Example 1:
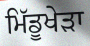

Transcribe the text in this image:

ਮਿੱਡੂਖੇੜਾ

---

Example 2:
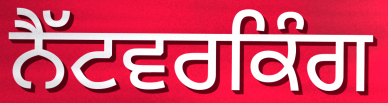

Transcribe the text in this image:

ਨੈੱਟਵਰਕਿੰਗ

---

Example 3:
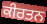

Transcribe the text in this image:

ਕੀਰਤਨ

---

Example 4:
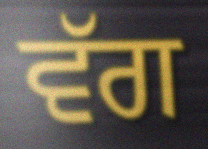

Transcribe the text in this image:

ਵੱਗ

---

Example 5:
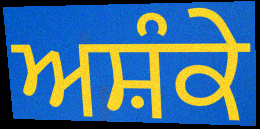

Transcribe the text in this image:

ਅਸ਼ੰਕੇ